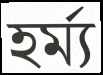
হর্ম্য